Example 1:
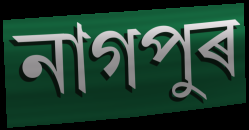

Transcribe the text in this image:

নাগপুৰ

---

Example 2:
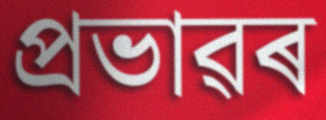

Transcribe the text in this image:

প্ৰভাৱৰ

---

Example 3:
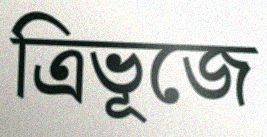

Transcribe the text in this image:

ত্ৰিভূজে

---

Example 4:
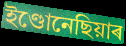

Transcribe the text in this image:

ইণ্ডোনেছিয়াৰ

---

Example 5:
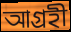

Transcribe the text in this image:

আগ্ৰহী